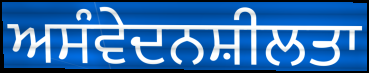
ਅਸੰਵੇਦਨਸ਼ੀਲਤਾ